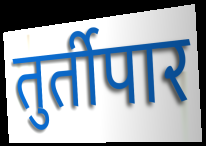
तुर्तीपार